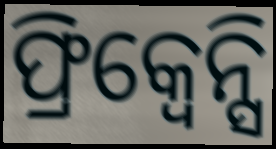
ଫ୍ରିକ୍ୱେନ୍ସି